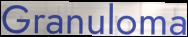
Granuloma